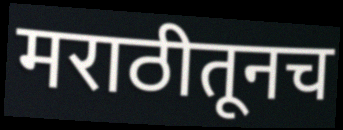
मराठीतूनच